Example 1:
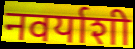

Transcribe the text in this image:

नवर्याशी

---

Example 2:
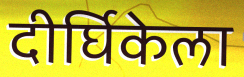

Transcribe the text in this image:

दीर्घिकेला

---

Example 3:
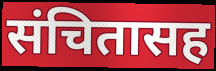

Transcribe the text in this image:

संचितासह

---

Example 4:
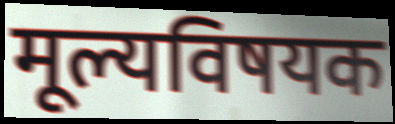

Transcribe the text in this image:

मूल्यविषयक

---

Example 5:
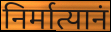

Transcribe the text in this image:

निर्मात्यानं